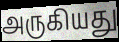
அருகியது